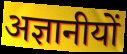
अज्ञानीयों